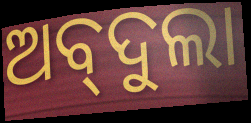
ଅବ୍‌ଦୁଲା